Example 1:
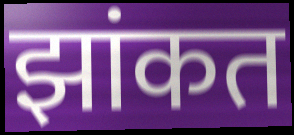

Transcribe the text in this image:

झांकत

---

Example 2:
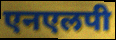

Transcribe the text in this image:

एनएलपी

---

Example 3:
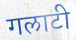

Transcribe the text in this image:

गलाटी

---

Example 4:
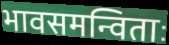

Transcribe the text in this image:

भावसमन्विताः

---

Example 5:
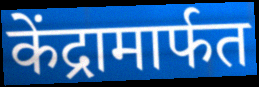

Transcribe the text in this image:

केंद्रामार्फत